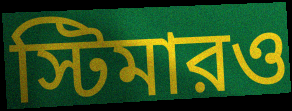
স্টিমারও